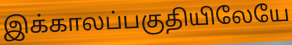
இக்காலப்பகுதியிலேயே